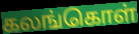
கலங்கொள்